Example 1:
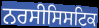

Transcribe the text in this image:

ਨਰਸੀਸਿਸਟਿਕ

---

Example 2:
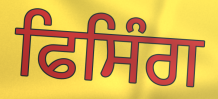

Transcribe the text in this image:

ਫਿਸਿੰਗ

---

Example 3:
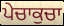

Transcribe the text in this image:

ਪੇਚਾਕੁਚਾ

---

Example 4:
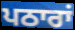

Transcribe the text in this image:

ਪਠਾਰਾਂ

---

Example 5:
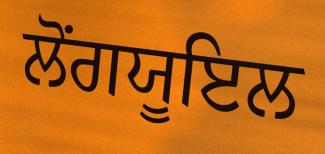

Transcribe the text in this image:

ਲੋਂਗਯੂਇਲ